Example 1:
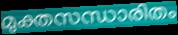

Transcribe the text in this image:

മുക്തസന്ധാരിതം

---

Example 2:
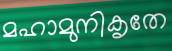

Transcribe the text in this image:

മഹാമുനികൃതേ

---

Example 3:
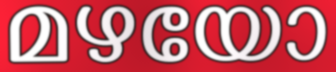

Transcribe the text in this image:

മഴയോ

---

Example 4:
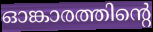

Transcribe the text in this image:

ഓങ്കാരത്തിന്റെ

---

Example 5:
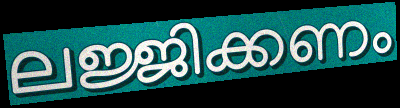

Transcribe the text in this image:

ലജ്ജിക്കണം